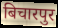
बिचारपुर